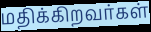
மதிக்கிறவர்கள்